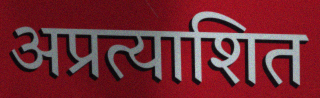
अप्रत्याशित